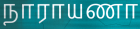
நாராயணா